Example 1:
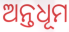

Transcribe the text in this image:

ଅନ୍ତଧୂମ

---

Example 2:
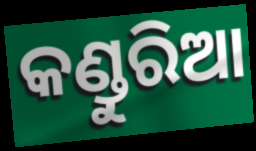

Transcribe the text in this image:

କଣ୍ଡୁରିଆ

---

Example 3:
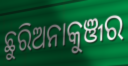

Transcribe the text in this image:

ଛୁରିଅନାକୁଞ୍ଜର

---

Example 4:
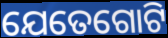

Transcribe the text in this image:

ଯେତେଗୋଟି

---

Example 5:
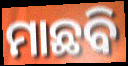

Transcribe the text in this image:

ମାଛବି